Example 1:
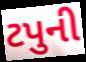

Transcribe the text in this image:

ટપુની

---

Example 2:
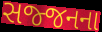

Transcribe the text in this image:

સજ્જનના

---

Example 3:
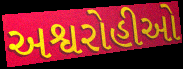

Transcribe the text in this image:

અશ્વરોહીઓ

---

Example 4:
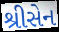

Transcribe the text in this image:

શ્રીસેન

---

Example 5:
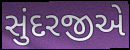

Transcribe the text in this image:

સુંદરજીએ